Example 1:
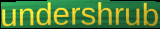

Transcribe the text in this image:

undershrub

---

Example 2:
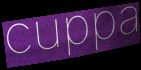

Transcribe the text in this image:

cuppa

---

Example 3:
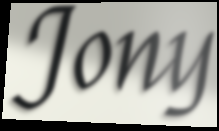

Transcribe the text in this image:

Jony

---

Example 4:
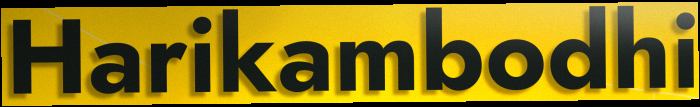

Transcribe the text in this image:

Harikambodhi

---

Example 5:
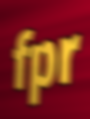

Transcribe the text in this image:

fpr